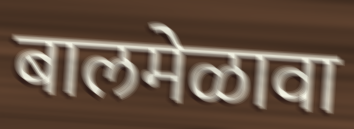
बालमेळावा